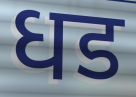
धड